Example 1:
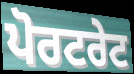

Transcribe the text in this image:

ਪੋਰਟਰੇਟ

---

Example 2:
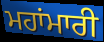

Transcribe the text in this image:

ਮਹਾਂਮਾਰੀ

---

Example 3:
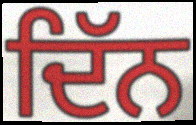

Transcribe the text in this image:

ਦਿੱਨ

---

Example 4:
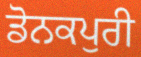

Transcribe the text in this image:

ਡੋਨਕਪੁਰੀ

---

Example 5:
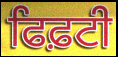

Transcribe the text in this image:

ਫਿਫ਼ਟੀ